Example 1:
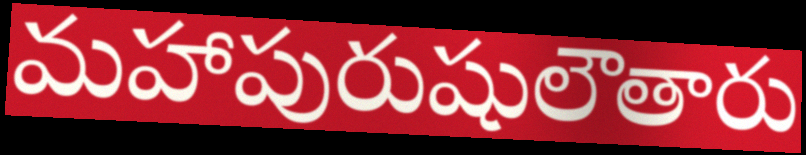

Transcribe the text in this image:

మహాపురుషులౌతారు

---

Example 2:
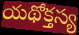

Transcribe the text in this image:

యథోక్తస్య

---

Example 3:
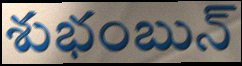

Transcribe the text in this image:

శుభంబున్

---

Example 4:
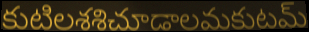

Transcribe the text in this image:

కుటిలశశిచూడాలమకుటమ్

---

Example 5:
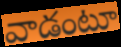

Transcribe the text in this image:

వాడంటూ